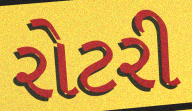
રોટરી